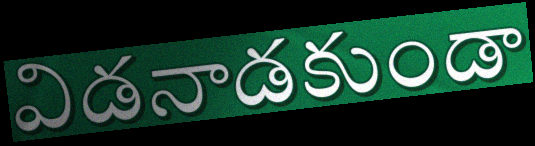
విడనాడకుండా